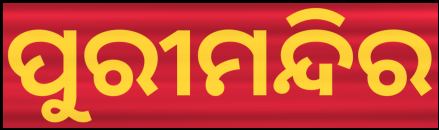
ପୁରୀମନ୍ଦିର